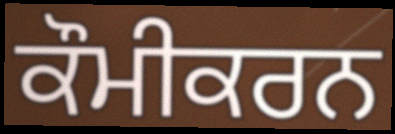
ਕੌਮੀਕਰਨ